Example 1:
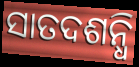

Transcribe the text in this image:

ସାତଦଶନ୍ଧି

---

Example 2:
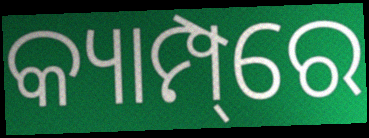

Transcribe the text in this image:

କ୍ୟାମ୍ପ୍‌ରେ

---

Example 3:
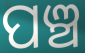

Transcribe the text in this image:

ପଞ୍ଚ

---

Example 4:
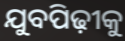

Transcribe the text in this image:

ଯୁବପିଢ଼ୀକୁ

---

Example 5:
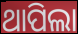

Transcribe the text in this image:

ଥାପିଲା